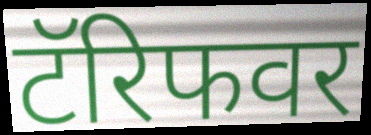
टॅरिफवर